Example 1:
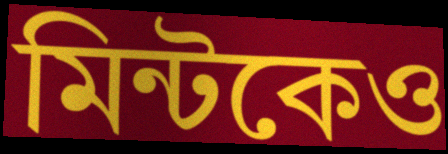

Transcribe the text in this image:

মিন্টকেও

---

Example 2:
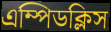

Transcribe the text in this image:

এম্পিডক্লিস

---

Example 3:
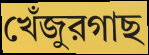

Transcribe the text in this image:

খেঁজুরগাছ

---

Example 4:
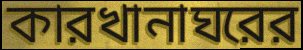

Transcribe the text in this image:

কারখানাঘরের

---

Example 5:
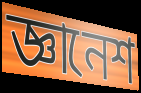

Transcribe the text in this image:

জ্ঞানেশ